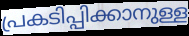
പ്രകടിപ്പിക്കാനുള്ള